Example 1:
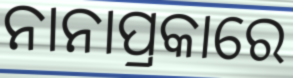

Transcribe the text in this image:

ନାନାପ୍ରକାରେ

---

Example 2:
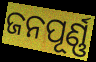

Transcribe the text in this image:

ଜନପୂର୍ଣ୍ଣ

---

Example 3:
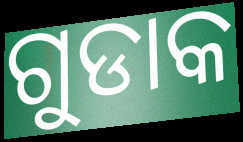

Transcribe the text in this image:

ଗୁଡାକ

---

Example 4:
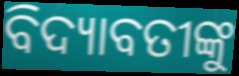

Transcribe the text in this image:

ବିଦ୍ୟାବତୀଙ୍କୁ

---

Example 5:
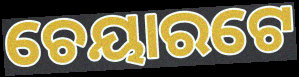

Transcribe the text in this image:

ଚେୟାରଟେ